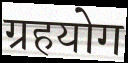
ग्रहयोग